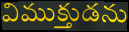
విముక్తుడను